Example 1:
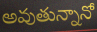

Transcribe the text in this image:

అవుతున్నానో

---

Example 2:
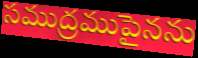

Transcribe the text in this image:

సముద్రముపైనను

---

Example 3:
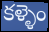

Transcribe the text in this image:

కళ్ళెం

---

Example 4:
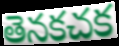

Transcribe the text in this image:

తెనకచక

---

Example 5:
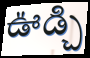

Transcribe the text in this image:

ఊడ్చి